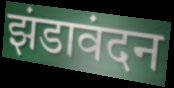
झंडावंदन